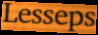
Lesseps